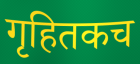
गृहितकच